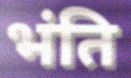
भंति